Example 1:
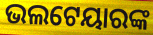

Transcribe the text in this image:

ଭଲଟେୟାରଙ୍କ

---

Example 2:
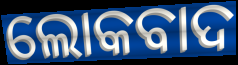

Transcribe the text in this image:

ଲୋକବାଦ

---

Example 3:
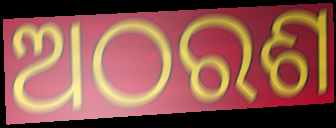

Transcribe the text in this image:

ଅଠରଶ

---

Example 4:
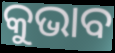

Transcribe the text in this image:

କୁଭାବ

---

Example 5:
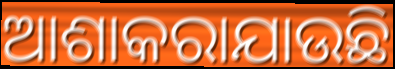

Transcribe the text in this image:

ଆଶାକରାଯାଉଛି